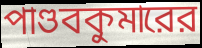
পাণ্ডবকুমারের